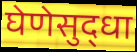
घेणेसुद्धा